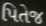
પિતેજ